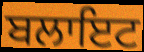
ਬਲਾਇਟ